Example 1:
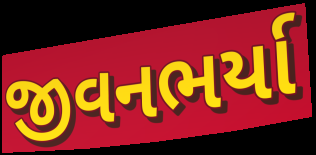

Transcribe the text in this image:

જીવનભર્યા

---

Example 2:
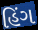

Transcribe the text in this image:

હિંગ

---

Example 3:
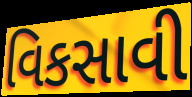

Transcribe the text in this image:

વિકસાવી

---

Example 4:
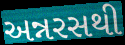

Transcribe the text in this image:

અન્નરસથી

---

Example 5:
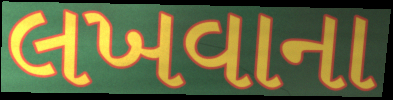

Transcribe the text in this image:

લખવાના